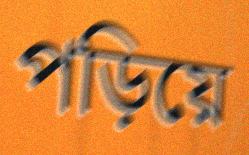
পড়িয়ে